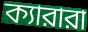
ক্যারারা